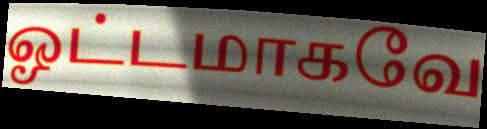
ஓட்டமாகவே